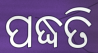
ପଦ୍ଧତି